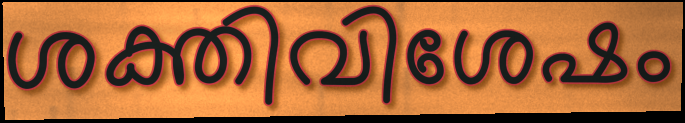
ശക്തിവിശേഷം